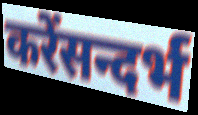
करेंसन्दर्भ